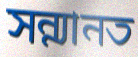
সন্মানত